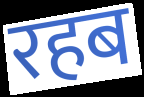
रहब